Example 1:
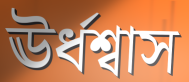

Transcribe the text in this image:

ঊর্ধশ্বাস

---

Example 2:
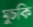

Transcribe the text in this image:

মুচকি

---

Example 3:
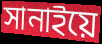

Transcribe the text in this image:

সানাইয়ে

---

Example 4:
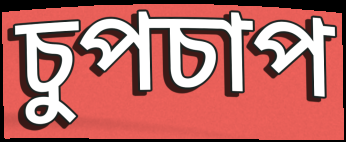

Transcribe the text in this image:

চুপচাপ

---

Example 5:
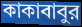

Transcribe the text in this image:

কাকাবাবুর